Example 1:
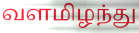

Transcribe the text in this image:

வளமிழந்து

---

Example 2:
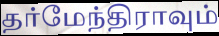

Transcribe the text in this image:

தர்மேந்திராவும்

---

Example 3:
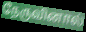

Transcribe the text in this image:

நேருவினால்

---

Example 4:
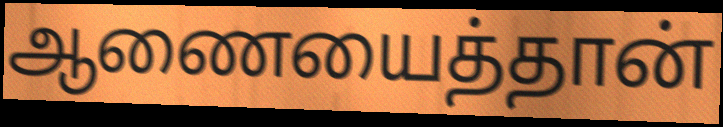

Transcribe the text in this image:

ஆணையைத்தான்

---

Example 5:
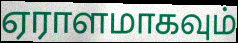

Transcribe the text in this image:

ஏராளமாகவும்